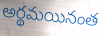
అర్థమయినంత